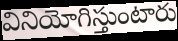
వినియోగిస్తుంటారు